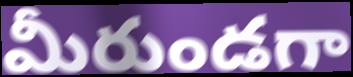
మీరుండగా